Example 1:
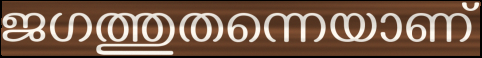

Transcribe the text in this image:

ജഗത്തുതന്നെയാണ്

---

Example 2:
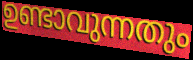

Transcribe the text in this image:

ഉണ്ടാവുന്നതും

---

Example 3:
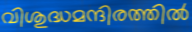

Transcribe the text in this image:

വിശുദ്ധമന്ദിരത്തിൽ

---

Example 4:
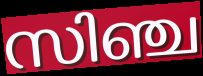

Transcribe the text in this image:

സിഞ്ച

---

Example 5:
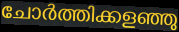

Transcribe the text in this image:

ചോർത്തിക്കളഞ്ഞു